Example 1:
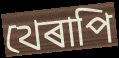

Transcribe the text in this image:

থেৰাপি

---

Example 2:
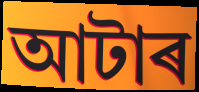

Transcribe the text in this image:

আটাৰ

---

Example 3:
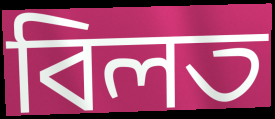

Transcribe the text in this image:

বিলত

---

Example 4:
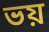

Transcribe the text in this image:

ভয়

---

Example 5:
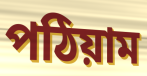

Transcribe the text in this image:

পঠিয়াম